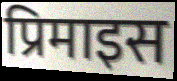
प्रिमाइस